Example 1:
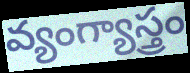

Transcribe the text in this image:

వ్యంగ్యాస్త్రం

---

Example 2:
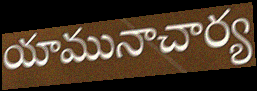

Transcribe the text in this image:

యామునాచార్య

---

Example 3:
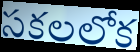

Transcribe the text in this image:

సకలలోక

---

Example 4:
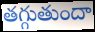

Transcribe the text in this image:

తగ్గుతుందా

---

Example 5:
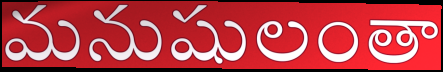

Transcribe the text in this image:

మనుషులంతా